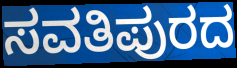
ಸವತಿಪುರದ